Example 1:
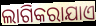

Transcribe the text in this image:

ଲାଗିକରାଯାଏ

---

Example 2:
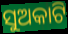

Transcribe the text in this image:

ସୁଅକାଟି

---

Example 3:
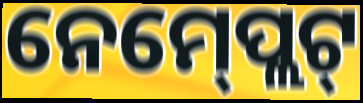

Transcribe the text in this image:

ନେମ୍‍ପ୍ଲେଟ୍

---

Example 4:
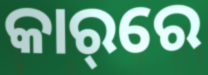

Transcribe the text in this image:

କାର୍‌ରେ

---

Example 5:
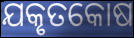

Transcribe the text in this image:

ଯକୃତକୋଷ